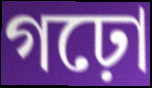
গঢ়ো